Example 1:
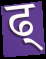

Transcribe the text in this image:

ढ्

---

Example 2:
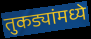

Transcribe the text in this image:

तुकड्यांमध्ये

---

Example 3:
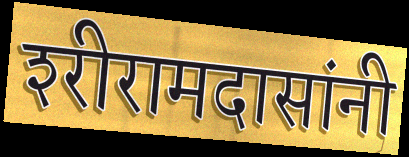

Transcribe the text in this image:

श्रीरामदासांनी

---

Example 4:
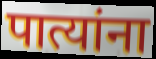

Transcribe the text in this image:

पात्यांना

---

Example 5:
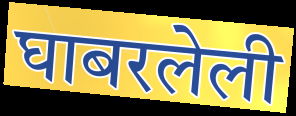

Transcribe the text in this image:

घाबरलेली